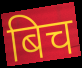
बिच